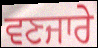
ਵਣਜਾਰੇ